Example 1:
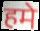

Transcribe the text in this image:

हमे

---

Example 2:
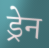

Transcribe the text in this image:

ड्रेन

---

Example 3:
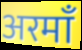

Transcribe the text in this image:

अरमाँ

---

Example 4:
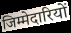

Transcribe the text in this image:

जिम्मेदारियों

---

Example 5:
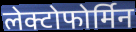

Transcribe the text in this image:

लेक्टोफोर्मिन